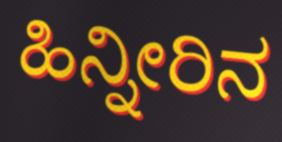
ಹಿನ್ನೀರಿನ